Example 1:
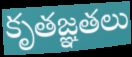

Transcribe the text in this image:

కృతజ్ఞతలు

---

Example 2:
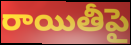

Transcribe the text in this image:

రాయితీపై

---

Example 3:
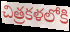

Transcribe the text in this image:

చిత్రకళలోకి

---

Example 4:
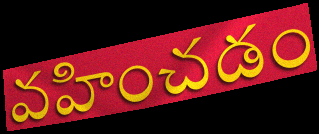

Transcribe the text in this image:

వహించడం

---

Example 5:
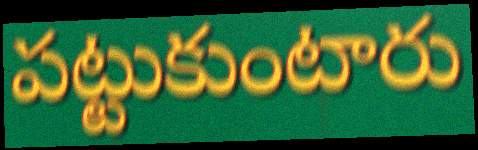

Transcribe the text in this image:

పట్టుకుంటారు